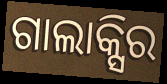
ଗାଲାକ୍ସିର